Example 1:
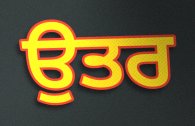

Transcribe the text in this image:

ਉਤਰ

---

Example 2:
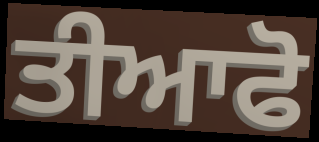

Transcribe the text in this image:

ਤੀਆਫੋ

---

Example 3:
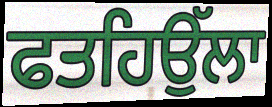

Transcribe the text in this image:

ਫਤਹਿਉੱਲਾ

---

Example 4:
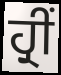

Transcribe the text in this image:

ਹ੍ਰੀਂ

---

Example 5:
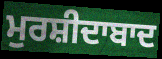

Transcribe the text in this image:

ਮੁਰਸ਼ੀਦਾਬਾਦ